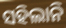
ସହିଲାନି